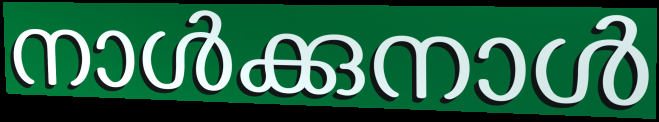
നാൾക്കുനാൾ